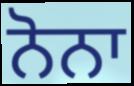
ਨੋਨਾ